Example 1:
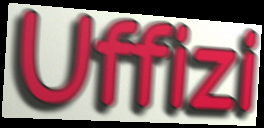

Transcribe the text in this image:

Uffizi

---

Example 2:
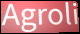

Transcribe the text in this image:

Agroli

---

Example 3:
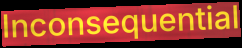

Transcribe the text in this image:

Inconsequential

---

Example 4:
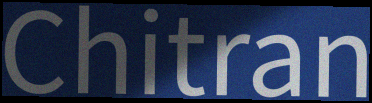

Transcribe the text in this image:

Chitran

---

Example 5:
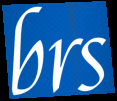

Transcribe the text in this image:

brs